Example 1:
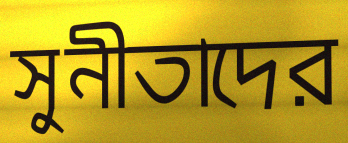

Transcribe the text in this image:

সুনীতাদের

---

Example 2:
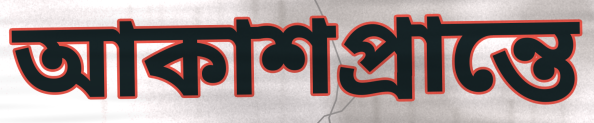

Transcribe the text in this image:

আকাশপ্রান্তে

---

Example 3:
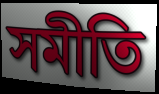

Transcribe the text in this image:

সমীতি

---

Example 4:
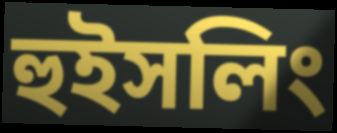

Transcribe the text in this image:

হুইসলিং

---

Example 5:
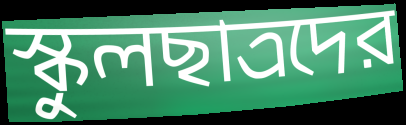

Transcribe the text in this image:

স্কুলছাত্রদের